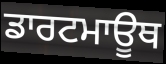
ਡਾਰਟਮਾਊਥ